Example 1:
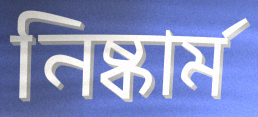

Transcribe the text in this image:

নিষ্কার্ম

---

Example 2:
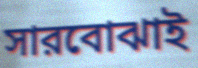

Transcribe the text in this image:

সারবোঝাই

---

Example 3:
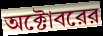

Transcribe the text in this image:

অক্টোবরের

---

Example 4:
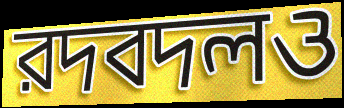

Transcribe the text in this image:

রদবদলও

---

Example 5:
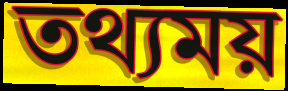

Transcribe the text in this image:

তথ্যময়